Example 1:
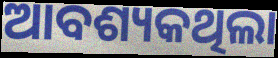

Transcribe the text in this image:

ଆବଶ୍ୟକଥିଲା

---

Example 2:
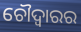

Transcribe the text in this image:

ଚୌଦ୍ୱାରର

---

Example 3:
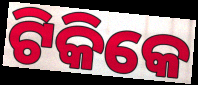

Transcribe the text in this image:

ଟିକିକେ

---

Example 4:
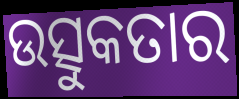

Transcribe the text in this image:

ଉତ୍ସୁକତାର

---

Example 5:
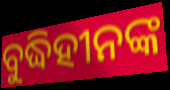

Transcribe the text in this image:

ବୁଦ୍ଧିହୀନଙ୍କ